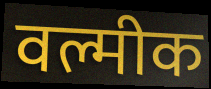
वल्मीक